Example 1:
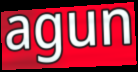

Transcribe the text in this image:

agun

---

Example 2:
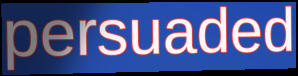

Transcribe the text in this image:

persuaded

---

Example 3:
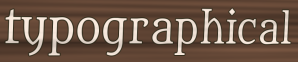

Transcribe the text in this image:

typographical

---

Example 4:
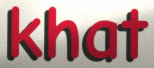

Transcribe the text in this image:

khat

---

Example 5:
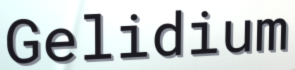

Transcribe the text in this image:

Gelidium